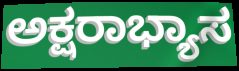
ಅಕ್ಷರಾಭ್ಯಾಸ